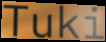
Tuki